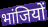
भांजियों